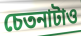
চেতনাটাও